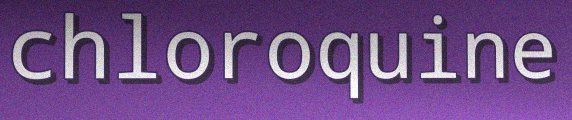
chloroquine